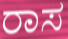
ರಾಸ